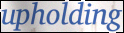
upholding